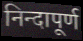
निन्दापूर्ण